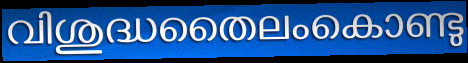
വിശുദ്ധതൈലംകൊണ്ടു